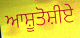
ਆਸ਼ੂਤੋਸ਼ੀਏ